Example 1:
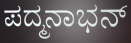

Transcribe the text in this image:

ಪದ್ಮನಾಭನ್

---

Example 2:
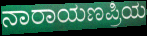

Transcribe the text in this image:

ನಾರಾಯಣಪ್ರಿಯ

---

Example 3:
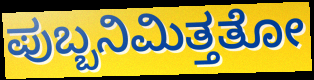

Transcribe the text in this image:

ಪುಬ್ಬನಿಮಿತ್ತತೋ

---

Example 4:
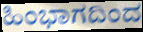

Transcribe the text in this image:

ಹಿಂಭಾಗದಿಂದ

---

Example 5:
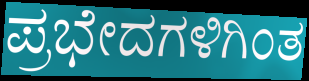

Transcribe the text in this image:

ಪ್ರಭೇದಗಳಿಗಿಂತ